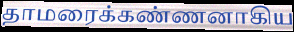
தாமரைக்கண்ணனாகிய